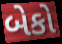
બેકો